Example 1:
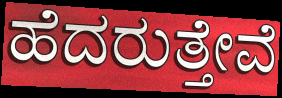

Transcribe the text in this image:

ಹೆದರುತ್ತೇವೆ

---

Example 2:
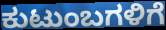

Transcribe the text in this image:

ಕುಟುಂಬಗಳಿಗೆ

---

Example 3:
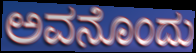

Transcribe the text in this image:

ಅವನೊಂದು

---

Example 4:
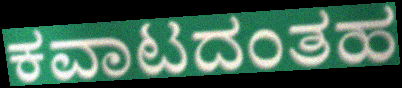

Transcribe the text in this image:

ಕವಾಟದಂತಹ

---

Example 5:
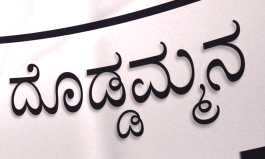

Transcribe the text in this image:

ದೊಡ್ಡಮ್ಮನ